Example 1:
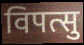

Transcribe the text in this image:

विपत्सु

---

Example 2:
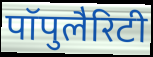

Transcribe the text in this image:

पॉपुलैरिटी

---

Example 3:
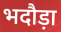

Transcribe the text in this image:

भदौड़ा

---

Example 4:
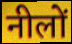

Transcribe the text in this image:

नीलों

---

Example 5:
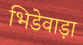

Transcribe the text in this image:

भिडेवाड़ा